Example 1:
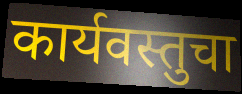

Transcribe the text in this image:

कार्यवस्तुचा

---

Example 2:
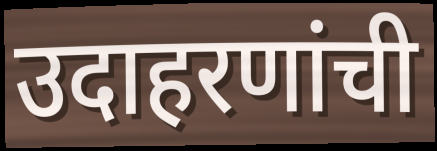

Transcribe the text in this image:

उदाहरणांची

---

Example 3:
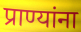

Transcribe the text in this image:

प्राण्यांना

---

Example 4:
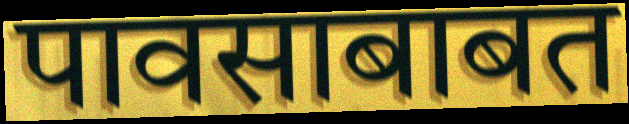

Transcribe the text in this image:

पावसाबाबत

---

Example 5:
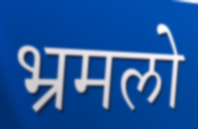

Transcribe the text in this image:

भ्रमलो